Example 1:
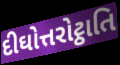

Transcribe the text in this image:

દીઘોત્તરોટ્ઠાતિ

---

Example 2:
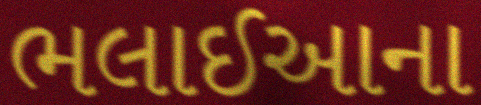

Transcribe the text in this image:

ભલાઈઆના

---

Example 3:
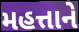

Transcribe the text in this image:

મહત્તાને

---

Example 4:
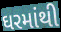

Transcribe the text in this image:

ઘરમાંથી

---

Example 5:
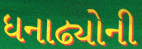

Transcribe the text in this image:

ધનાઢ્યોની